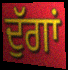
ਦੁੱਗਾਂ